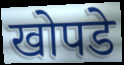
खोपडे